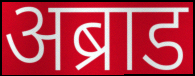
अब्राड